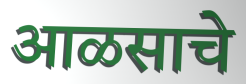
आळसाचे